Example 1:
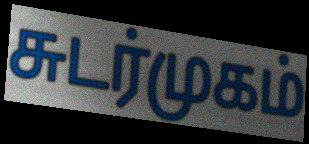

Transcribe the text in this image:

சுடர்முகம்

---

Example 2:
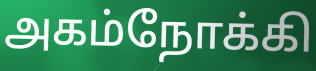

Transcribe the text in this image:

அகம்நோக்கி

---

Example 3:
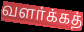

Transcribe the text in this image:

வளர்க்கத்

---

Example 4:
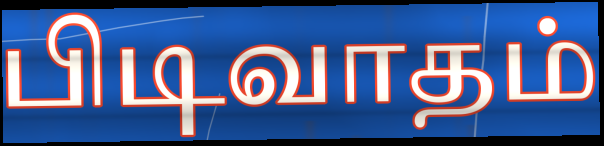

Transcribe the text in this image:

பிடிவாதம்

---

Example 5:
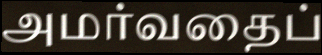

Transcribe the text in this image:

அமர்வதைப்